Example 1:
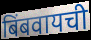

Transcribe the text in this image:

बिंबवायची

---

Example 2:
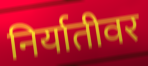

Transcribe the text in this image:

निर्यातीवर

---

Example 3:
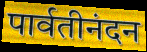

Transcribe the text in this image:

पार्वतीनंदन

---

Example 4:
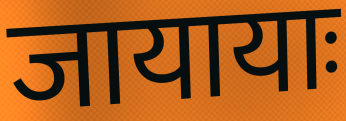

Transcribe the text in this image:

जायायाः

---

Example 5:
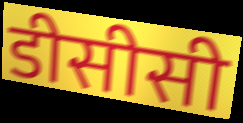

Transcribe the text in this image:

डीसीसी